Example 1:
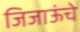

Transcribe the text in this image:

जिजाऊंचे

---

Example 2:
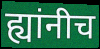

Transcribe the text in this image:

ह्यांनीच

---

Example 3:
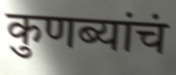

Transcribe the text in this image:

कुणब्यांचं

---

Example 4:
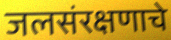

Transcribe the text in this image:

जलसंरक्षणाचे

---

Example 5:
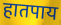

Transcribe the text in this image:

हातपाय